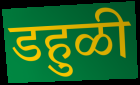
डहुळी